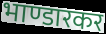
भाण्डारकर